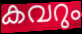
കവറും